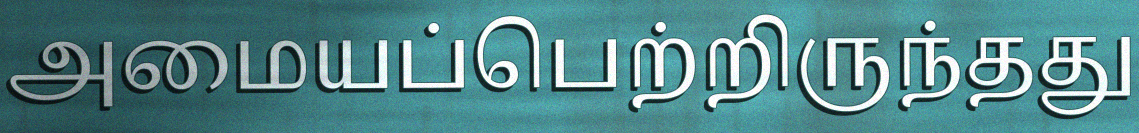
அமையப்பெற்றிருந்தது